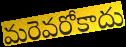
మరెవరోకాదు